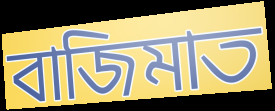
বাজিমাত